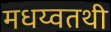
मधय्वतथी